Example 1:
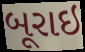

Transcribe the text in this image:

બૂરાઇ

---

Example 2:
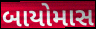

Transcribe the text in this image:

બાયોમાસ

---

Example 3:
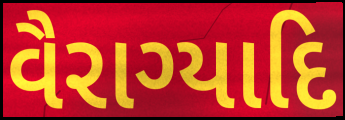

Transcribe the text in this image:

વૈરાગ્યાદિ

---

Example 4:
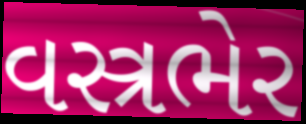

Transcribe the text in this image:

વસ્ત્રભેર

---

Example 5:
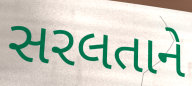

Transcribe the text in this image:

સરલતાને